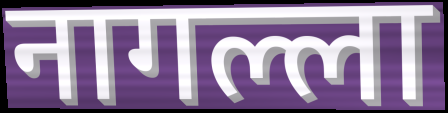
नागल्ला